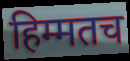
हिम्मतच